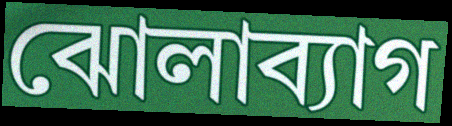
ঝোলাব্যাগ